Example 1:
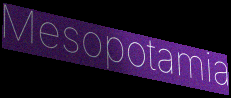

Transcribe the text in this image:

Mesopotamia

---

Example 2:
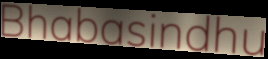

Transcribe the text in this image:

Bhabasindhu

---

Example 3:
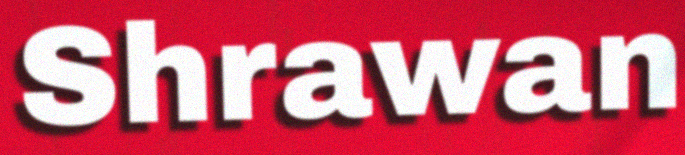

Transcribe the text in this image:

Shrawan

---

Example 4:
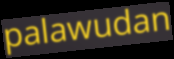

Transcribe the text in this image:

palawudan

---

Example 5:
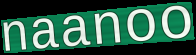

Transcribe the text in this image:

naanoo